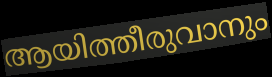
ആയിത്തീരുവാനും